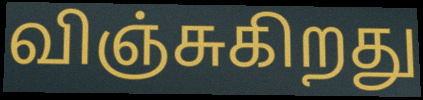
விஞ்சுகிறது